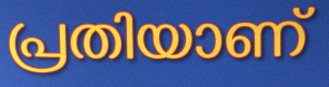
പ്രതിയാണ്